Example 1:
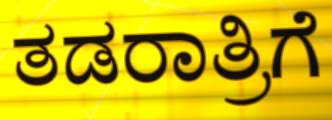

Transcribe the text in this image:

ತಡರಾತ್ರಿಗೆ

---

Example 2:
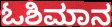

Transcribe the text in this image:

ಓಶಿಮಾನ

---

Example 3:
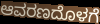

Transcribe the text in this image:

ಆವರಣದೊಳಗೆ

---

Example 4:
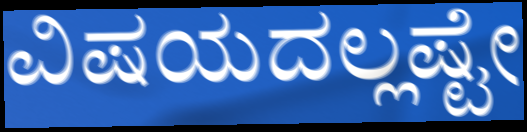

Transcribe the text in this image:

ವಿಷಯದಲ್ಲಷ್ಟೇ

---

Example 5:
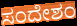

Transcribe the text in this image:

ಸಂದೇಶಂ